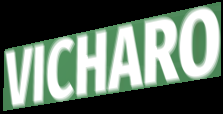
VICHARO